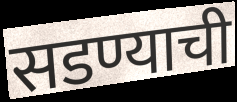
सडण्याची